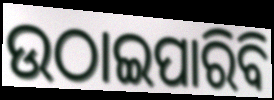
ଉଠାଇପାରିବି